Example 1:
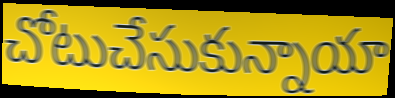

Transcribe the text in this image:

చోటుచేసుకున్నాయా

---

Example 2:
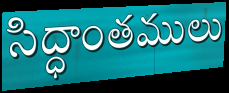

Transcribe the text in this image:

సిద్ధాంతములు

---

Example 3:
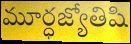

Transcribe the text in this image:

మూర్ధజ్యోతిషి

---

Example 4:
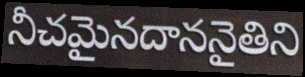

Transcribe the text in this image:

నీచమైనదాననైతిని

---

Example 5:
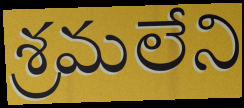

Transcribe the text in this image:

శ్రమలేని